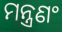
ମନ୍ତ୍ରଣଂ